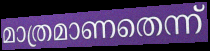
മാത്രമാണതെന്ന്